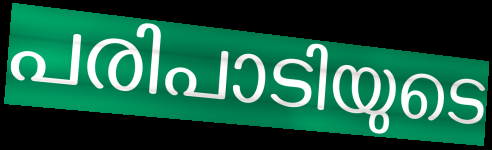
പരിപാടിയുടെ